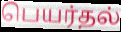
பெயர்தல்